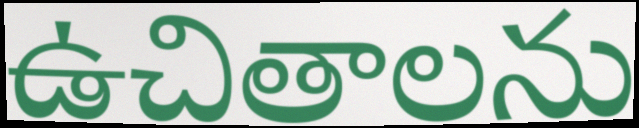
ఉచితాలను